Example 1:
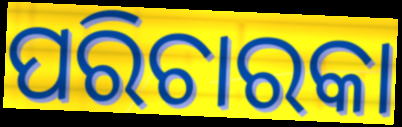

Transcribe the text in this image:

ପରିଚାରକା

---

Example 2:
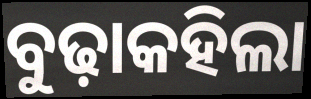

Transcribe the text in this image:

ବୁଢ଼ାକହିଲା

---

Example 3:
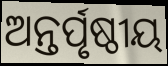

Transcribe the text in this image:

ଅନ୍ତର୍ପୃଷ୍ଠୀୟ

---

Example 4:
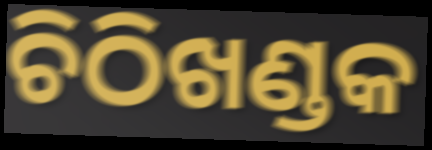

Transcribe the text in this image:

ଚିଠିଖଣ୍ଡକ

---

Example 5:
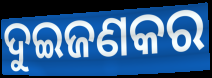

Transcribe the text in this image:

ଦୁଇଜଣକର